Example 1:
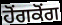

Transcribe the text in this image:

ਹੋਂਗਕੋਂਗ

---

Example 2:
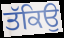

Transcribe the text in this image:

ਤੱਕਿਉ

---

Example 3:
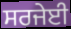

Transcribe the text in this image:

ਸਰਜੇਈ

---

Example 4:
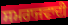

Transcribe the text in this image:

ਸਮਰਾਜਵਾਦੀ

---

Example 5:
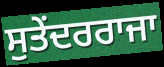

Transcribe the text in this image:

ਸੁਤੇਂਦਰਰਾਜਾ